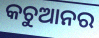
କଚୁଆନର